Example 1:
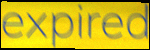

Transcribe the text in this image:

expired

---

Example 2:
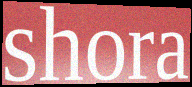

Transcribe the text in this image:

shora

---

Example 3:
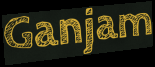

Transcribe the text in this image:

Ganjam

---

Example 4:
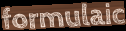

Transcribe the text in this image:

formulaic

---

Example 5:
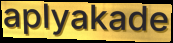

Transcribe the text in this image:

aplyakade